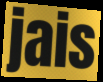
jais